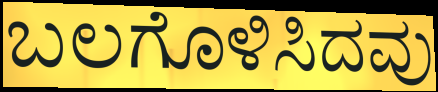
ಬಲಗೊಳಿಸಿದವು